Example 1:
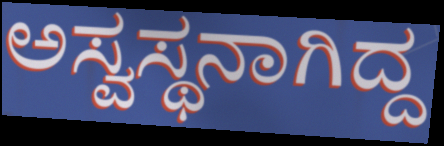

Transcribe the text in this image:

ಅಸ್ವಸ್ಥನಾಗಿದ್ದ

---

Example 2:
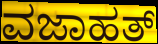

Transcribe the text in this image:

ವಜಾಹತ್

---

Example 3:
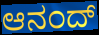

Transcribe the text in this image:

ಆನಂದ್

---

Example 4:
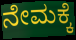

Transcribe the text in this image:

ನೇಮಕ್ಕೆ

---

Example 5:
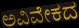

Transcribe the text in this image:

ಅವಿವೇಕದ